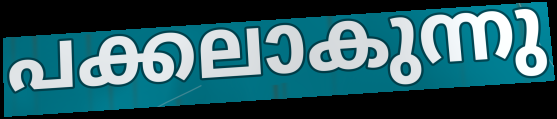
പക്കലാകുന്നു